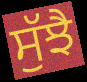
ਸੁੱਝੈ